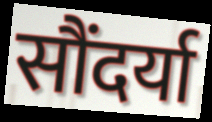
सौंदर्या